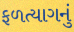
ફળત્યાગનું